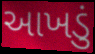
આખડું